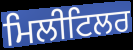
ਮਿਲੀਟਿਲਰ